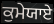
ਕੁਮੇਯਾਏ